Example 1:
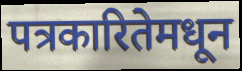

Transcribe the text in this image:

पत्रकारितेमधून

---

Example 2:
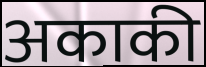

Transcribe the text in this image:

अकाकी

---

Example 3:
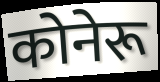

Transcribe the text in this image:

कोनेरू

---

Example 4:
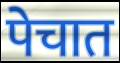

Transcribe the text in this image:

पेचात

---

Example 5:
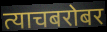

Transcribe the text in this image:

त्याचबरोबर